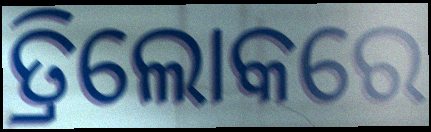
ତ୍ରିଲୋକରେ